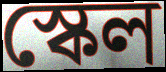
স্কেল